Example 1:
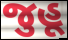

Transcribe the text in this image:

જુહૂ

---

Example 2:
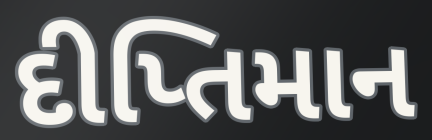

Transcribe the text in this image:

દીપ્તિમાન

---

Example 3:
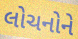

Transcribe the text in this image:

લોચનોને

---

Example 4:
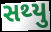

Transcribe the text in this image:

સથ્યુ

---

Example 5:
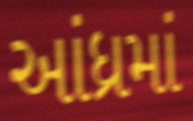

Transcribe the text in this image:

આંધ્રમાં